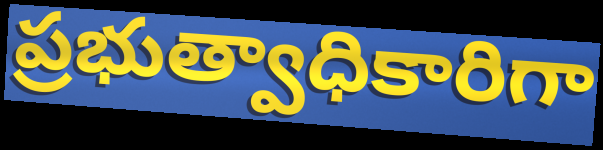
ప్రభుత్వాధికారిగా